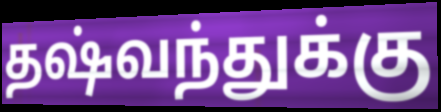
தஷ்வந்துக்கு